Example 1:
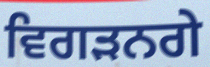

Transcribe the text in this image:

ਵਿਗੜਨਗੇ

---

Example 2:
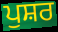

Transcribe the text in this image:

ਪੁਸ਼ਰ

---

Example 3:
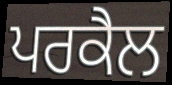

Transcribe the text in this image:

ਪਰਕੈਲ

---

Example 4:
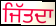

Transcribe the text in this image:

ਜਿੱਤਦਾ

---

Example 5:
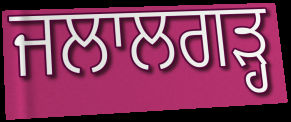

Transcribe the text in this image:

ਜਲਾਲਗੜ੍ਹ